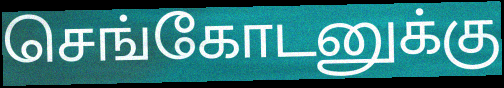
செங்கோடனுக்கு